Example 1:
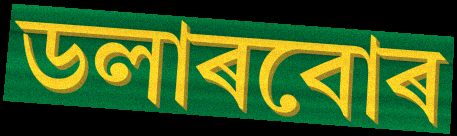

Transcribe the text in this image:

ডলাৰবোৰ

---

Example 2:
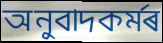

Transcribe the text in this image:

অনুবাদকৰ্মৰ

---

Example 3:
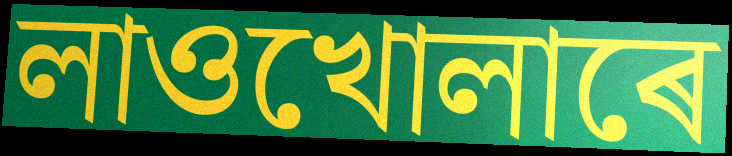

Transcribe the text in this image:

লাওখোলাৰে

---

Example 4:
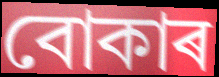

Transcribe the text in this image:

বোকাৰ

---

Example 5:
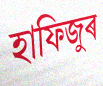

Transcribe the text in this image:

হাফিজুৰ